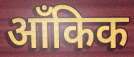
आँकिक